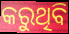
କରୁଥିବି